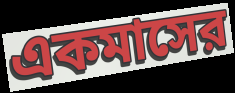
একমাসের